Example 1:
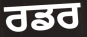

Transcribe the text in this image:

ਰਡਰ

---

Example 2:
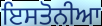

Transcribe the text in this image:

ਇਸਤੋਨੀਆ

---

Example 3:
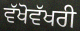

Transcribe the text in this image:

ਵੱਖੋਵੱਖਰੀ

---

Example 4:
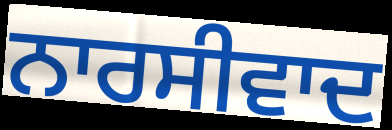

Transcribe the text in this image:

ਨਾਰਸੀਵਾਦ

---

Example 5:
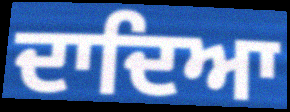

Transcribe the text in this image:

ਦਾਦਿਆ